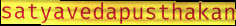
satyavedapusthakan